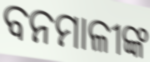
ବନମାଳୀଙ୍କ